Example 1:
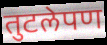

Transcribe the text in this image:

तुटलेपण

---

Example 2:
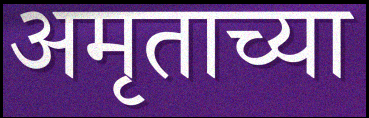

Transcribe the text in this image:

अमृताच्या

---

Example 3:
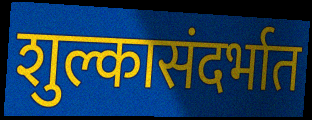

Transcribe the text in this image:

शुल्कासंदर्भात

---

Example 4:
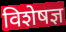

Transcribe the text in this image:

विशेषज्ञ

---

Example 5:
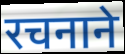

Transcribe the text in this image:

रचनाने